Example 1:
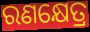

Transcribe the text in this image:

ରଣକ୍ଷେତ୍ର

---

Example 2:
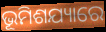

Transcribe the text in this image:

ଭୂମିଶଯ୍ୟାରେ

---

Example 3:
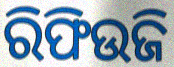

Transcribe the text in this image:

ରିଫିଉଜି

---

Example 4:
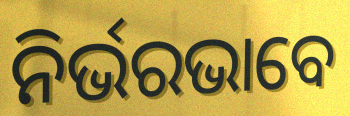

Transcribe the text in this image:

ନିର୍ଭରଭାବେ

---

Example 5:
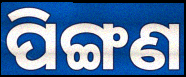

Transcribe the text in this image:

ପିଙ୍ଗଣ